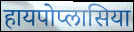
हायपोप्लासिया